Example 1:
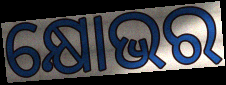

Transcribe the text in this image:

କ୍ଷୋଭର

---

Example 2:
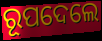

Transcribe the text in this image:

ରୂପଦେଲେ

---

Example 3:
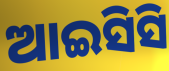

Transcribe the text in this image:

ଆଇସିସି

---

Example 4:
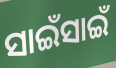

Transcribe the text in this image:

ସାଇଁସାଇଁ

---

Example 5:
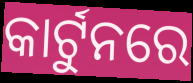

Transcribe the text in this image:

କାର୍ଟୁନରେ